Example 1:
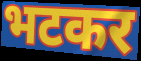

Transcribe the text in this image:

भटकर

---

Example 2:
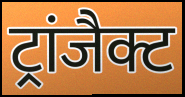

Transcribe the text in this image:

ट्रांजैक्ट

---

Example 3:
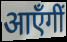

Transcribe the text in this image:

आएँगीं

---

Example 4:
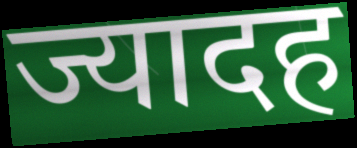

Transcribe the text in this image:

ज्यादह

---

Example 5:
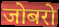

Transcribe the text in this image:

जोबरो